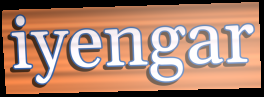
iyengar